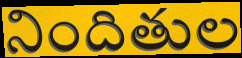
నిందితుల